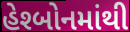
હેશ્બોનમાંથી